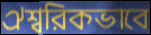
ঐশ্বরিকভাবে